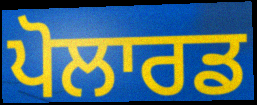
ਪੋਲਾਰਡ